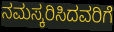
ನಮಸ್ಕರಿಸಿದವರಿಗೆ